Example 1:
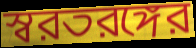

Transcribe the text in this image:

স্বরতরঙ্গের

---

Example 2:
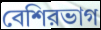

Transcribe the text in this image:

বেশিরভাগ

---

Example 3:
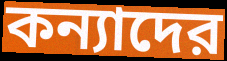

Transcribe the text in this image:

কন্যাদের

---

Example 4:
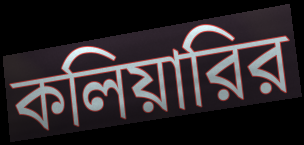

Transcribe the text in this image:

কলিয়ারির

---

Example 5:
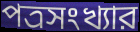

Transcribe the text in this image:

পত্রসংখ্যার